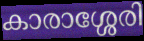
കാരാശ്ശേരി